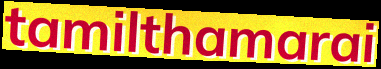
tamilthamarai